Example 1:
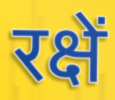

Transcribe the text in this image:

रक्षें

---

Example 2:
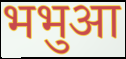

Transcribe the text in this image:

भभुआ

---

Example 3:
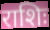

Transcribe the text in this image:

राशिः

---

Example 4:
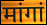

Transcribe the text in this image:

मांगां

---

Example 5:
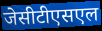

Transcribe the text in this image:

जेसीटीएसएल